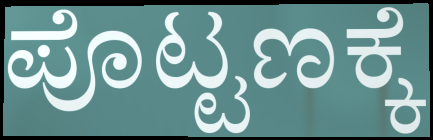
ಪೊಟ್ಟಣಕ್ಕೆ